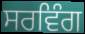
ਸਰਵਿੰਗ